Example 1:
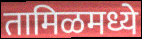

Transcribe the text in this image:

तामिळमध्ये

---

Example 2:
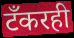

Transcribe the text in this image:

टँकरही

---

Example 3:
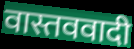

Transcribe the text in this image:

वास्तववादी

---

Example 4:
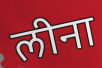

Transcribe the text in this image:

लीना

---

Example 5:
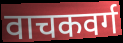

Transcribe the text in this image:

वाचकवर्ग